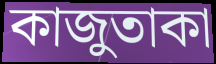
কাজুতাকা